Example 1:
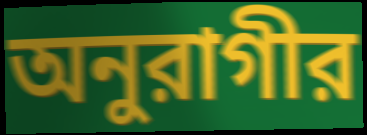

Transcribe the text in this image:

অনুরাগীর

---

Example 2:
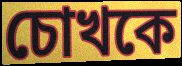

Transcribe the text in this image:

চোখকে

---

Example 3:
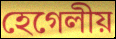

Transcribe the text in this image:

হেগেলীয়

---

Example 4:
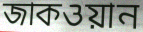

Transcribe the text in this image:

জাকওয়ান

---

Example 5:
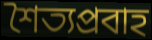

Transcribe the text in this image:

শৈত্যপ্রবাহ